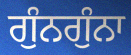
ਗੁੰਨਗੁੰਨਾ